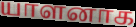
யாளனாக